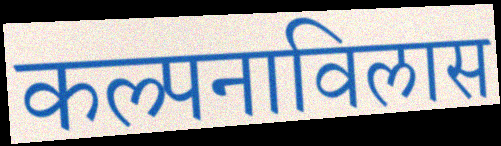
कल्पनाविलास